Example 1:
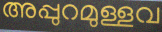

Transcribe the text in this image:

അപ്പുറമുള്ളവ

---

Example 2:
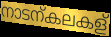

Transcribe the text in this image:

നാടന്കലകള്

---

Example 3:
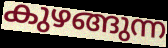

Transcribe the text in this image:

കുഴങ്ങുന്ന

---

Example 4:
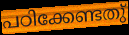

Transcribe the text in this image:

പഠിക്കേണ്ടതു്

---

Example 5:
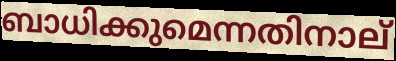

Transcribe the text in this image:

ബാധിക്കുമെന്നതിനാല്